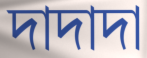
দাদাদা